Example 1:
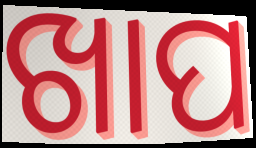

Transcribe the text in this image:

ଖାପ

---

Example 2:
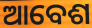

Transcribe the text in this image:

ଆବେଶ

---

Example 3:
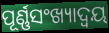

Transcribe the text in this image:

ପୂର୍ଣ୍ଣସଂଖ୍ୟାଦ୍ଵୟ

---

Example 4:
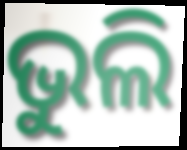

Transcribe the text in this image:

ଭୁଲି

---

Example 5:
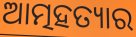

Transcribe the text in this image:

ଆତ୍ମହତ୍ୟାର